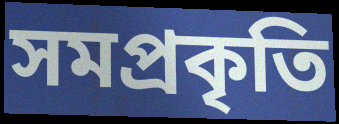
সমপ্রকৃতি